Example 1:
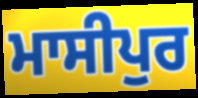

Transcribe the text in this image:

ਮਾਸੀਪੁਰ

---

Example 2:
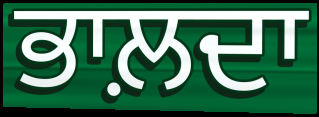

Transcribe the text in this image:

ਭਾਲ਼ਦਾ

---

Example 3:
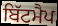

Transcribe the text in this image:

ਬਿੱਟਮੈਪ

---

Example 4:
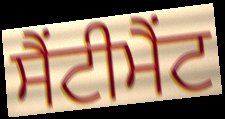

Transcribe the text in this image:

ਸੈਂਟੀਮੈਂਟ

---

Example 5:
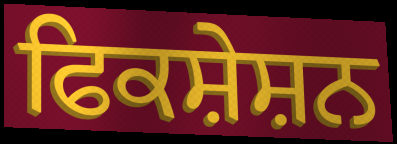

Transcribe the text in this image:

ਫਿਕਸ਼ੇਸ਼ਨ